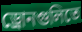
ড্রোনগুলিতে